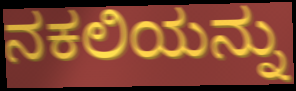
ನಕಲಿಯನ್ನು